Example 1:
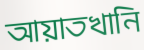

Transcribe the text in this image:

আয়াতখানি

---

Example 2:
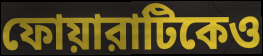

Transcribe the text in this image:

ফোয়ারাটিকেও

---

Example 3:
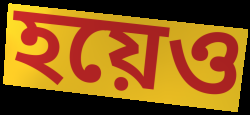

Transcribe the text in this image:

হয়েও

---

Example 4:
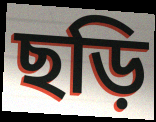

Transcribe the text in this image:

ছড়ি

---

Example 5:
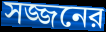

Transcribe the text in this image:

সজ্জনের